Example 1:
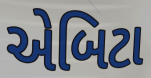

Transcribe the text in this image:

એબિટા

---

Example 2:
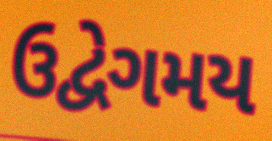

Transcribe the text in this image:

ઉદ્વેગમય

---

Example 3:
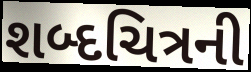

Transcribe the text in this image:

શબ્દચિત્રની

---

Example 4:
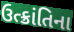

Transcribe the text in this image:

ઉત્ક્રાંતિના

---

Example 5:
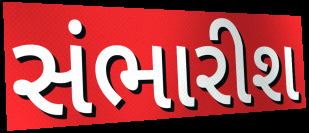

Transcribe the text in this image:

સંભારીશ